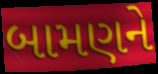
બામણને